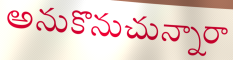
అనుకొనుచున్నారా